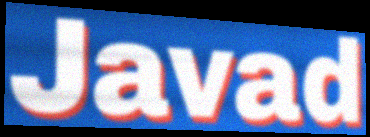
Javad